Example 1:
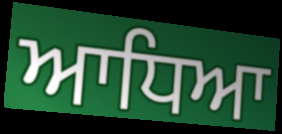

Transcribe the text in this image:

ਆਧਿਆ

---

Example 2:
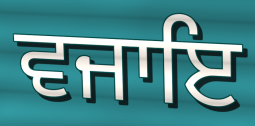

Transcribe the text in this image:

ਵਜਾਇ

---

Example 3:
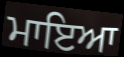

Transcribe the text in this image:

ਮਾਇਆ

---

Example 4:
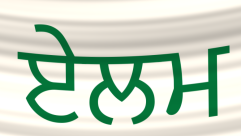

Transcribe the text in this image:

ਏਲਮ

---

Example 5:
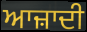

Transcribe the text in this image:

ਆਜ਼ਾਦੀ